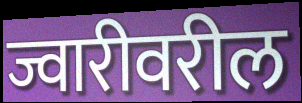
ज्वारीवरील